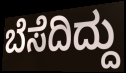
ಬೆಸೆದಿದ್ದು